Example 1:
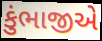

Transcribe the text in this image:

કુંભાજીએ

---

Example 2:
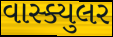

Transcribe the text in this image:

વાસ્ક્યુલર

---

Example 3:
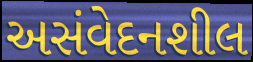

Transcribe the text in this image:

અસંવેદનશીલ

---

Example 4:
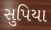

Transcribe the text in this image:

સુપિયા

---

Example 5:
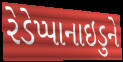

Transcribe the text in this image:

રેડેપ્પાનાઇડુને